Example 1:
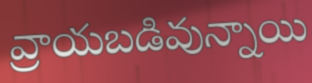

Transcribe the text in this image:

వ్రాయబడివున్నాయి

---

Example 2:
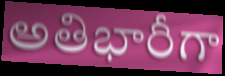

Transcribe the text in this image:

అతిభారీగా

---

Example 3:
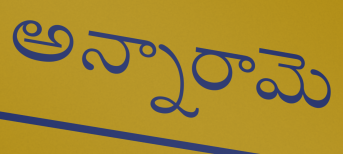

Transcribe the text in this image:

అన్నారామె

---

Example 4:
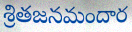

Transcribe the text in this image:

శ్రితజనమందార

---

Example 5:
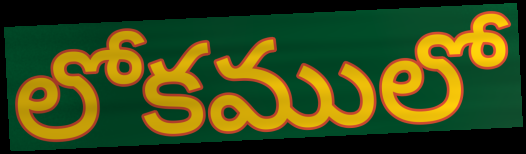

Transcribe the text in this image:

లోకములో